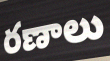
రణాలు